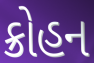
ક્રોહન